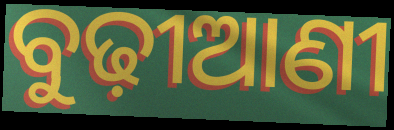
ବୁଢ଼ୀଆଣୀ